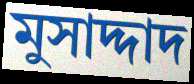
মুসাদ্দাদ